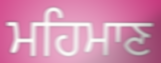
ਮਹਿਮਾਣ